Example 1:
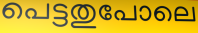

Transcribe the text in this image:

പെട്ടതുപോലെ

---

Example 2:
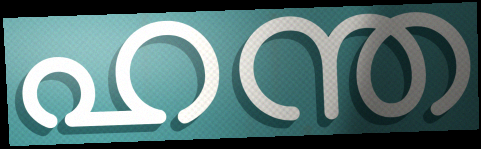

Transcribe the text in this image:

ഹന്ത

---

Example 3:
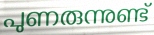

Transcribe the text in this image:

പുണരുന്നുണ്ട്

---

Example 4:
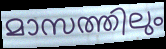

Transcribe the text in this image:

മാസത്തിലും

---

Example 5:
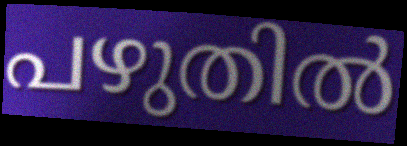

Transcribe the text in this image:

പഴുതിൽ